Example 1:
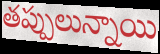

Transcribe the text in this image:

తప్పులున్నాయి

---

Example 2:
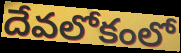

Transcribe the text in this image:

దేవలోకంలో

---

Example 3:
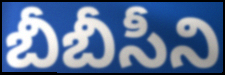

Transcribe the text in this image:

బీబీసీని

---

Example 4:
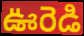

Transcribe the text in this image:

ఊరెడి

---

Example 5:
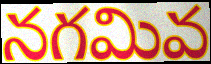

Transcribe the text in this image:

నగమివ